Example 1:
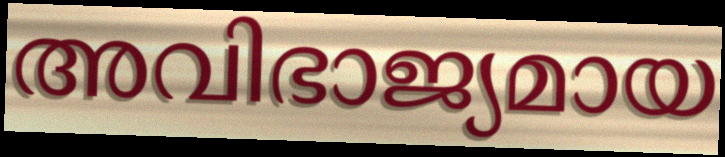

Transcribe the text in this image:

അവിഭാജ്യമായ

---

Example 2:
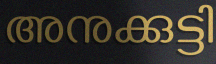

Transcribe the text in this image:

അനുക്കുട്ടി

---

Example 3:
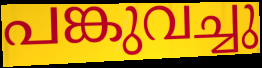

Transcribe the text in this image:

പങ്കുവച്ചു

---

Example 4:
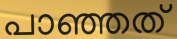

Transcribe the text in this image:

പാഞ്ഞത്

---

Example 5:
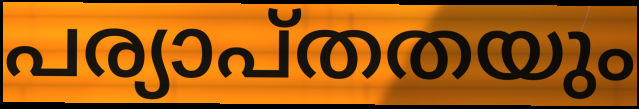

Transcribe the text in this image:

പര്യാപ്തതയും